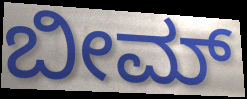
ಬೀಮ್